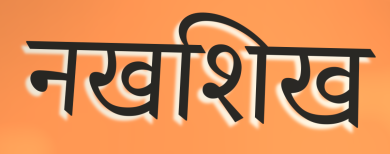
नखशिख